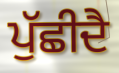
ਪੁੱਛੀਦੈ